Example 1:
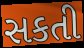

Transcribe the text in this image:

સકતી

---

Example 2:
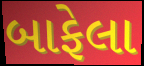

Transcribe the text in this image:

બાફેલા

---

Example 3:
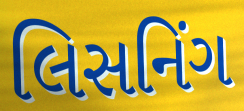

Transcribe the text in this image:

લિસનિંગ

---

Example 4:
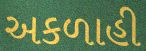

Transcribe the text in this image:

અકળાહી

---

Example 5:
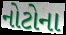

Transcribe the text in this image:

નોટોના